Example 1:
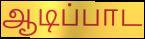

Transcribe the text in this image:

ஆடிப்பாட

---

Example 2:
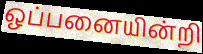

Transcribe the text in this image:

ஒப்பனையின்றி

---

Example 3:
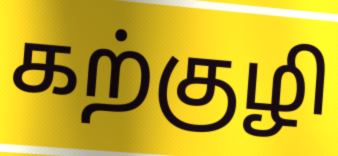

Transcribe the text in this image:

கற்குழி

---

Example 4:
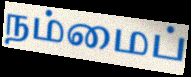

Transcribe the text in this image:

நம்மைப்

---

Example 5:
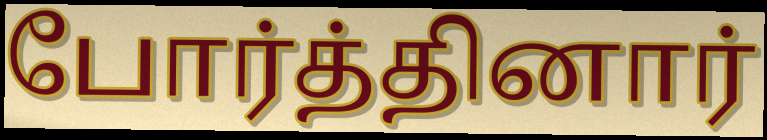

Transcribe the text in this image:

போர்த்தினார்